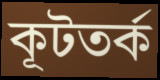
কূটতর্ক